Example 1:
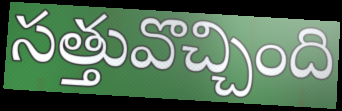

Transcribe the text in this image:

సత్తువొచ్చింది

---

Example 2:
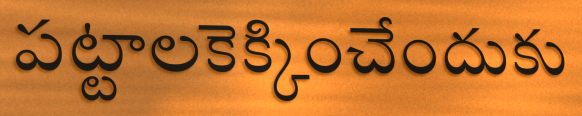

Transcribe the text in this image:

పట్టాలకెక్కించేందుకు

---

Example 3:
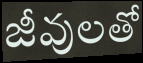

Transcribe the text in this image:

జీవులతో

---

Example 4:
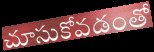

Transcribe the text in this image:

చూసుకోవడంతో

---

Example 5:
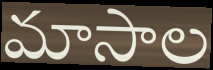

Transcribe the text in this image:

మాసాల